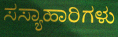
ಸಸ್ಯಾಹಾರಿಗಳು